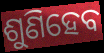
ଶୁଣିହେବ